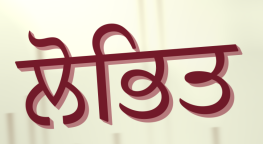
ਲੋਭਿਤ